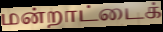
மன்றாட்டைக்